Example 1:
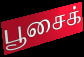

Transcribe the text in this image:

பூசைக்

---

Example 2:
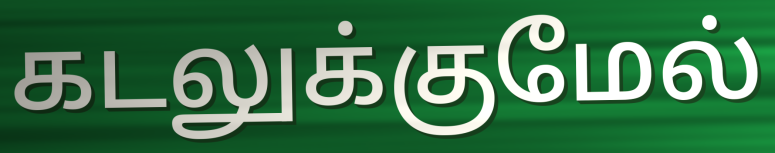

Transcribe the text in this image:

கடலுக்குமேல்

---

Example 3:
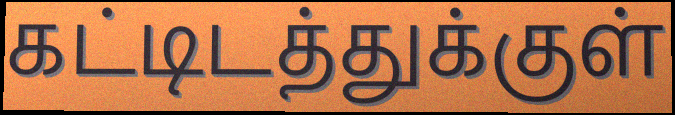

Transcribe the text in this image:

கட்டிடத்துக்குள்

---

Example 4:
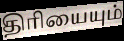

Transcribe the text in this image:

திரியையும்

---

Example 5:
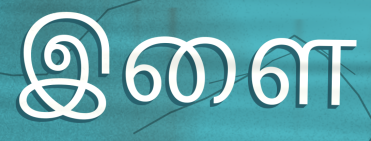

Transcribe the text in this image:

இளை